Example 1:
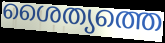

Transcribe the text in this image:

ശൈത്യത്തെ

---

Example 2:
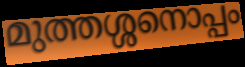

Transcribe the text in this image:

മുത്തശ്ശനൊപ്പം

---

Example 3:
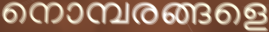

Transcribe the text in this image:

നൊമ്പരങ്ങളെ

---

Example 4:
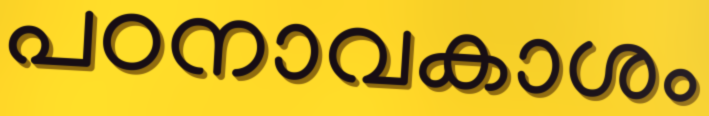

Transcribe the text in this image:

പഠനാവകാശം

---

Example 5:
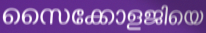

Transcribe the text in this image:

സൈക്കോളജിയെ